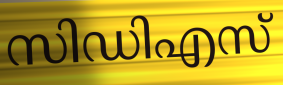
സിഡിഎസ്